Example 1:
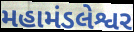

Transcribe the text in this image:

મહામંડલેશ્વર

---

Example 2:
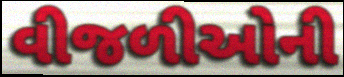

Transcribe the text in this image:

વીજળીઓની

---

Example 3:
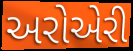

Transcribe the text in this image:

અરોએરી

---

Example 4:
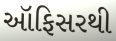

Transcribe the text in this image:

ઑફિસરથી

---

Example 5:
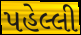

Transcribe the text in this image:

પહેલ્લી